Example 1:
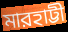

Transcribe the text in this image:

মারহাট্টী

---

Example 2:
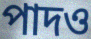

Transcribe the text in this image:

পাদও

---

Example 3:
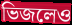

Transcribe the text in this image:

ভিজলেও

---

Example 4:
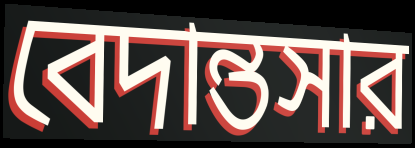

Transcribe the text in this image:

বেদান্তসার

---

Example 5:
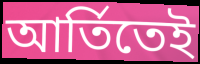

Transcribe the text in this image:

আর্তিতেই